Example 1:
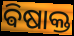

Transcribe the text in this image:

ଵିଷାକ୍ତ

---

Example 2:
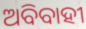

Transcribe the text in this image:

ଅବିବାହୀ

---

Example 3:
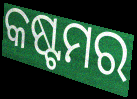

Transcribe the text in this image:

କଷ୍ଟମର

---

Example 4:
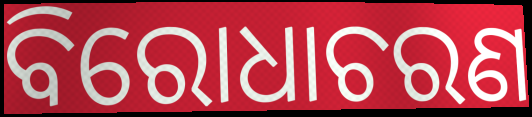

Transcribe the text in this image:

ବିରୋଧାଚରଣ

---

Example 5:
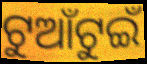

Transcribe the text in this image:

ଟୁଆଁଟୁଇଁ